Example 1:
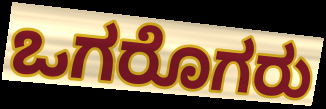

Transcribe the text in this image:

ಒಗರೊಗರು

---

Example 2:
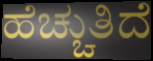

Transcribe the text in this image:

ಹೆಚ್ಚುತಿದೆ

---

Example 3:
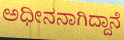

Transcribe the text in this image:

ಅಧೀನನಾಗಿದ್ದಾನೆ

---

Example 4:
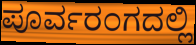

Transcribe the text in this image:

ಪೂರ್ವರಂಗದಲ್ಲಿ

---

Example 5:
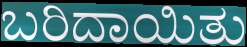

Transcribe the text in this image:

ಬರಿದಾಯಿತು